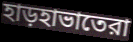
হাড়হাভাতেরা